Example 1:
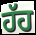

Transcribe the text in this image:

ਹੱਹ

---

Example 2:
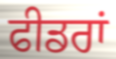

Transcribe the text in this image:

ਫੀਡਰਾਂ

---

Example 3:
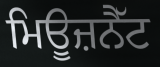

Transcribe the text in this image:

ਮਿਊਜ਼ਨੈੱਟ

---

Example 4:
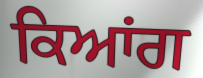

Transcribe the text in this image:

ਕਿਆਂਗ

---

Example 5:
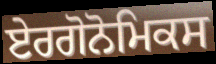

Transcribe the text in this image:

ਏਰਗੋਨੋਮਿਕਸ